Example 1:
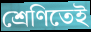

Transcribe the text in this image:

শ্রেণিতেই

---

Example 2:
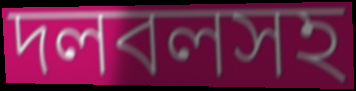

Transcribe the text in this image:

দলবলসহ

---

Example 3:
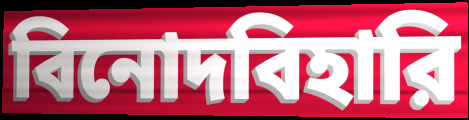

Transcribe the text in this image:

বিনোদবিহারি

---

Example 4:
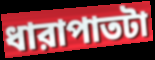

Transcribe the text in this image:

ধারাপাতটা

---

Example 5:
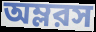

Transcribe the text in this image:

অম্লরস